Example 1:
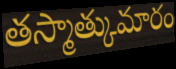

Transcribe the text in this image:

తస్మాత్కుమారం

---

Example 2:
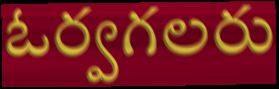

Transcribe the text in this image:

ఓర్వగలరు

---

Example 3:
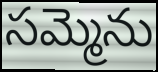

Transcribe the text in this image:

సమ్మెను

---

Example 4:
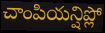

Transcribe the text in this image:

చాంపియన్షిప్లో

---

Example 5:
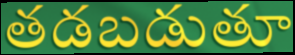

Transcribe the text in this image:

తడబడుతూ